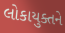
લોકાયુક્તને